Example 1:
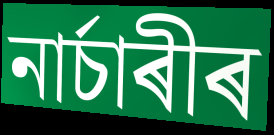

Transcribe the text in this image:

নাৰ্চাৰীৰ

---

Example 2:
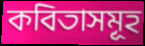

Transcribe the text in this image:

কবিতাসমূহ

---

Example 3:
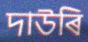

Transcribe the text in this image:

দাউৰি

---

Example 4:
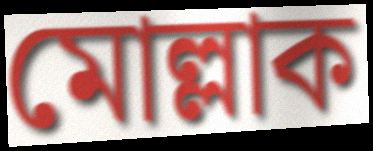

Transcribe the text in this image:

মোল্লাক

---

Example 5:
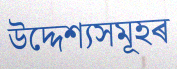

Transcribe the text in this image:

উদ্দেশ্যসমূহৰ